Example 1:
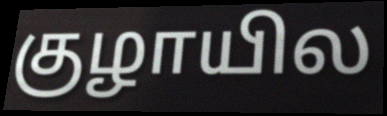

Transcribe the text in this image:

குழாயில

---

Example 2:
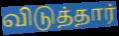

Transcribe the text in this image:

விடுத்தார்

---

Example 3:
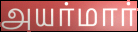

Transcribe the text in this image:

அயர்மார்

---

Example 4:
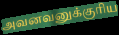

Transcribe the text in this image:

அவனவனுக்குரிய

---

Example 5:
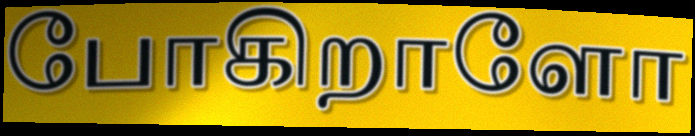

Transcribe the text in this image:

போகிறாளோ